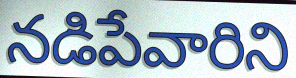
నడిపేవారిని